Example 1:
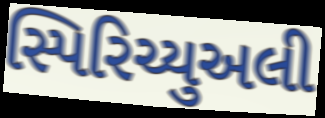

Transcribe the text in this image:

સ્પિરિચ્યુઅલી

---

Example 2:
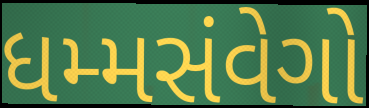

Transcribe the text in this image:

ધમ્મસંવેગો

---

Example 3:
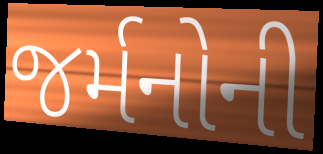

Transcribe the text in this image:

જર્મનોની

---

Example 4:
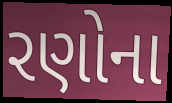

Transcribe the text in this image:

રણોના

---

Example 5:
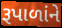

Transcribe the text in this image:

રૂપાળાંને